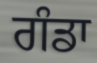
ਗੰਡਾ